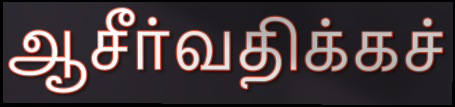
ஆசீர்வதிக்கச்